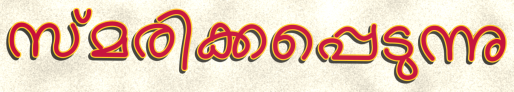
സ്മരിക്കപ്പെടുന്നു